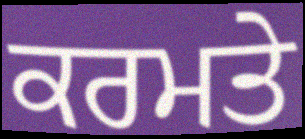
ਕਰਮਤੇ